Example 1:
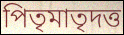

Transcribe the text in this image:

পিতৃমাতৃদত্ত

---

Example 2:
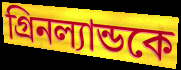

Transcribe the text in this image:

গ্রিনল্যান্ডকে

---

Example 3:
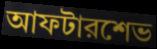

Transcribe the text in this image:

আফটারশেভ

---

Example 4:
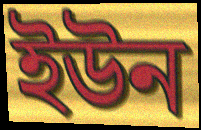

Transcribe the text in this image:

ইউন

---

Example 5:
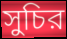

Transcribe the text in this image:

সুচির